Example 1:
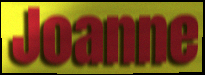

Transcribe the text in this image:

Joanne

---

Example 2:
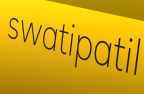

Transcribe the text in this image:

swatipatil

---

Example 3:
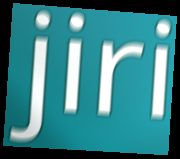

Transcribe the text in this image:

jiri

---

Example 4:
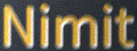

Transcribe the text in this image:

Nimit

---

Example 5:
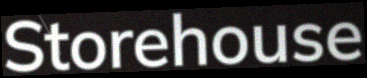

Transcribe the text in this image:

Storehouse